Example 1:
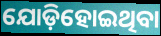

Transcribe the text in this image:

ଯୋଡ଼ିହୋଇଥିବା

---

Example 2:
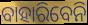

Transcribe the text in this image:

ବାହାରିବେନି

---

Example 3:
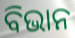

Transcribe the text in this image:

ବିଭାନ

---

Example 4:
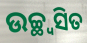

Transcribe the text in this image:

ଉଚ୍ଛ୍ୱସିତ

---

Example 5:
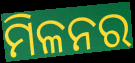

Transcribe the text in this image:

ମିଳନର